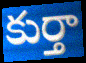
కుర్తా